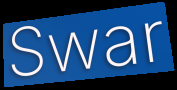
Swar